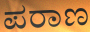
ಪರಾಣ